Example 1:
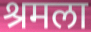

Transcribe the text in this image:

श्रमला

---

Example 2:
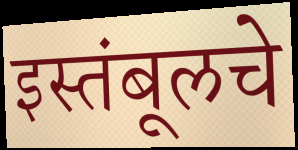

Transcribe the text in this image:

इस्तंबूलचे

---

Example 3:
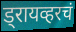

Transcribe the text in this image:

ड्रायव्हरचं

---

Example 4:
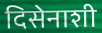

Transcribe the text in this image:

दिसेनाशी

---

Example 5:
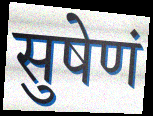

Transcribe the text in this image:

सुषेणं